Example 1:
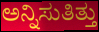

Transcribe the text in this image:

ಅನ್ನಿಸುತಿತ್ತು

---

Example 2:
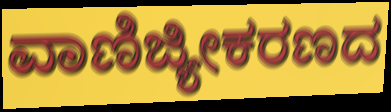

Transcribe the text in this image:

ವಾಣಿಜ್ಯೀಕರಣದ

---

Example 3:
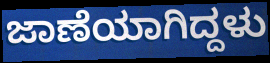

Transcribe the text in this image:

ಜಾಣೆಯಾಗಿದ್ದಳು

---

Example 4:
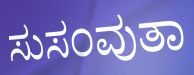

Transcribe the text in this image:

ಸುಸಂವುತಾ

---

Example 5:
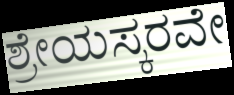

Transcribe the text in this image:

ಶ್ರೇಯಸ್ಕರವೇ